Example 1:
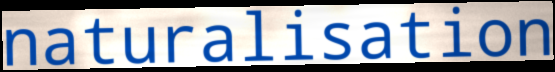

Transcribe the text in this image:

naturalisation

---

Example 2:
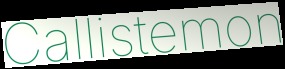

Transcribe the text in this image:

Callistemon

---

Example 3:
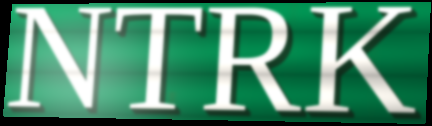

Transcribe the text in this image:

NTRK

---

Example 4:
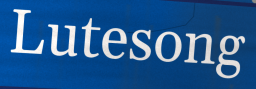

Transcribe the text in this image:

Lutesong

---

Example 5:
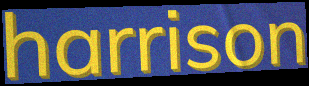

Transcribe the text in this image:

harrison